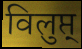
विलुप्त्